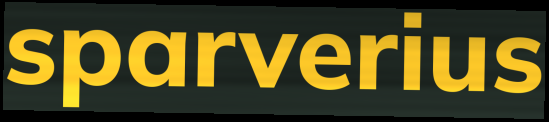
sparverius